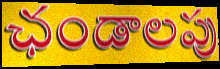
ఛండాలపు